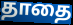
தாதை